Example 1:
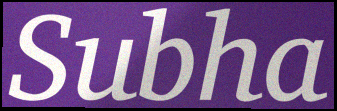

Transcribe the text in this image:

Subha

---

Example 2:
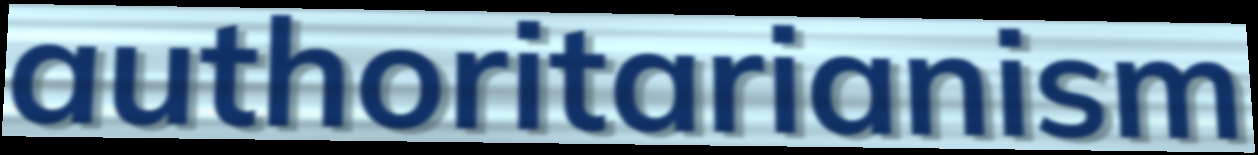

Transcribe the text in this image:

authoritarianism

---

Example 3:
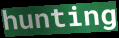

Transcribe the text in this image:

hunting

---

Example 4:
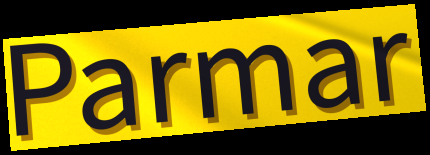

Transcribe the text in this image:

Parmar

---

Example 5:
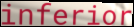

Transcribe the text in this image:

inferior